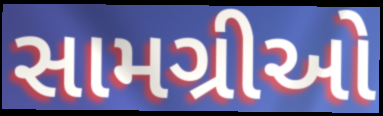
સામગ્રીઓ